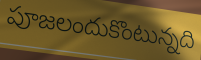
పూజలందుకొంటున్నది